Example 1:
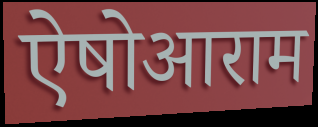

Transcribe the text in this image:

ऐषोआराम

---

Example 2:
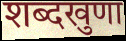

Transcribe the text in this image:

शब्दखुणा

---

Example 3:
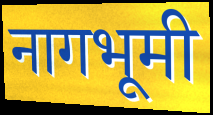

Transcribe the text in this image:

नागभूमी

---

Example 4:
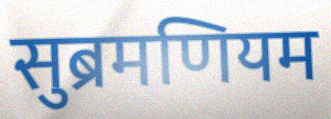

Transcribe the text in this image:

सुब्रमणियम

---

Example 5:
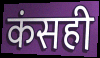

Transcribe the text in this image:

कंसही